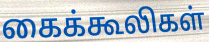
கைக்கூலிகள்